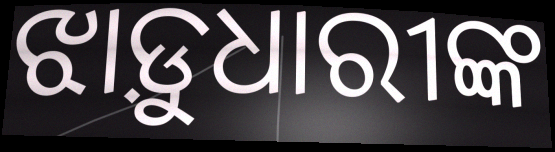
ଝାଡ଼ୁଧାରୀଙ୍କ